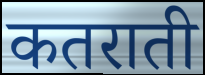
कतराती